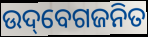
ଉଦ୍‌ବେଗଜନିତ